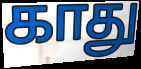
காது